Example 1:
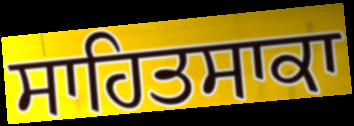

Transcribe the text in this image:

ਸਾਹਿਤਸਾਕਾ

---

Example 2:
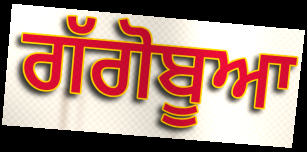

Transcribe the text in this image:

ਗੱਗੋਬੂਆ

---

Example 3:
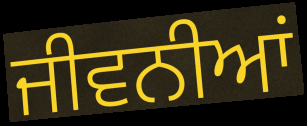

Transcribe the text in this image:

ਜੀਵਨੀਆਂ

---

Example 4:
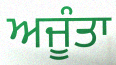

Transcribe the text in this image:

ਅਜੂੰਤਾ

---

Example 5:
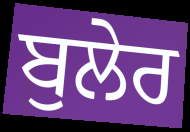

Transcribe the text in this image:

ਬੁਲੇਰ